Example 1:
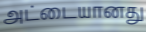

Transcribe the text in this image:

அட்டையானது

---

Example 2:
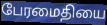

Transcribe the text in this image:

பேரமைதியை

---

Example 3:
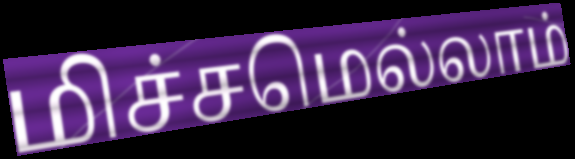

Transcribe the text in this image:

மிச்சமெல்லாம்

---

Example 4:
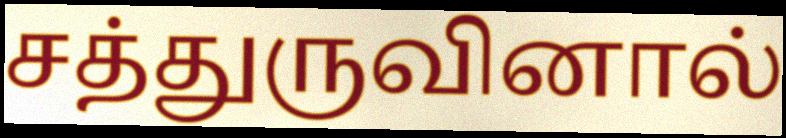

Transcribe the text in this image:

சத்துருவினால்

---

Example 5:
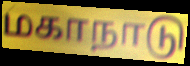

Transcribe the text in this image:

மகாநாடு